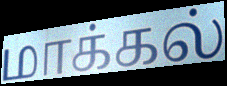
மாக்கல்